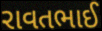
રાવતભાઈ